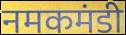
नमकमंडी